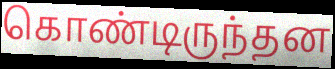
கொண்டிருந்தன